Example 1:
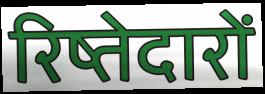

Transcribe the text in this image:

रिष्तेदारों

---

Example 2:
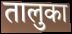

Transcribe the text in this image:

तालुका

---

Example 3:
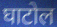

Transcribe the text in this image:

घाटोल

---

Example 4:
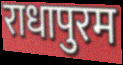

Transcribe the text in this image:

राधापुरम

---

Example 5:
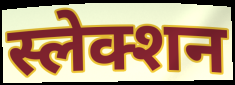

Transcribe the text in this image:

स्लेक्शन